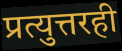
प्रत्युत्तरही